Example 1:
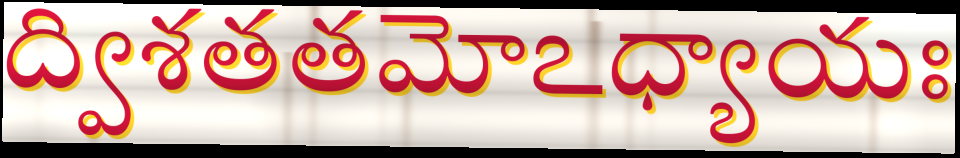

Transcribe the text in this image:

ద్విశతతమోఽధ్యాయః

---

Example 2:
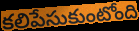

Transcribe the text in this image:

కలిపేసుకుంటోంది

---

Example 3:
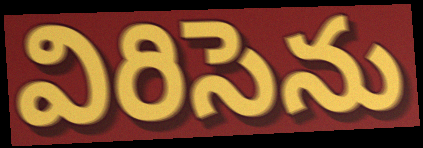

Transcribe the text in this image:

విరిసెను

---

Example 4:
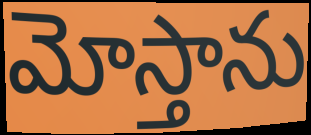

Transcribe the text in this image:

మోస్తాను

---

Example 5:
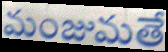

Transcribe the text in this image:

మంజుమతే